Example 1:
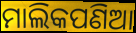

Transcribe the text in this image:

ମାଲିକପଣିଆ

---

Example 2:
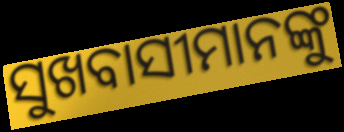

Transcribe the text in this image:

ସୁଖବାସୀମାନଙ୍କୁ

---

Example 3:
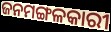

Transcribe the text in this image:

ଜନମଙ୍ଗଳକାରୀ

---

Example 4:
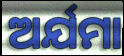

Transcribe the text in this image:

ଅର୍ଯମା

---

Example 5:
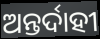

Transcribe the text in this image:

ଅନ୍ତର୍ଦାହୀ